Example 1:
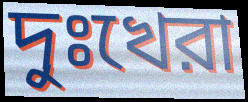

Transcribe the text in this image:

দুঃখেরা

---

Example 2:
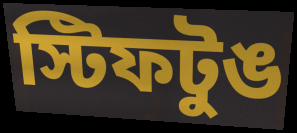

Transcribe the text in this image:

স্টিফটুঙ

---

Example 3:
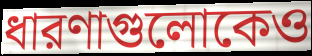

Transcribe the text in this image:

ধারণাগুলোকেও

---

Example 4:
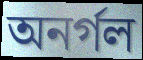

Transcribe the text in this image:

অনর্গল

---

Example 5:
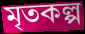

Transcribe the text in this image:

মৃতকল্প